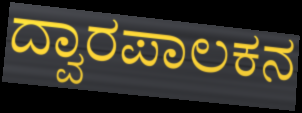
ದ್ವಾರಪಾಲಕನ